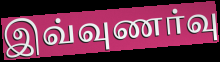
இவ்வுணர்வு